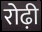
रोढ़ी